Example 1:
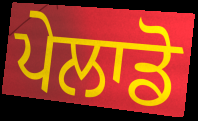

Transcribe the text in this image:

ਪੇਲਾਡੋ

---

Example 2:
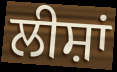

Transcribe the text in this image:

ਲੀਸ਼ਾਂ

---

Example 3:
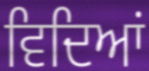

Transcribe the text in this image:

ਵਿਦਿਆਂ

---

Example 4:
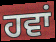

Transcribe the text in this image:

ਹਵਾਂ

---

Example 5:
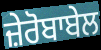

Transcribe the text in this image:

ਜ਼ੇਰੋਬਾਬੇਲ